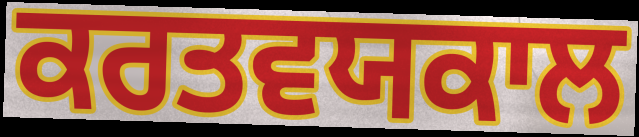
ਕਰਤਵਯਕਾਲ